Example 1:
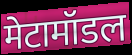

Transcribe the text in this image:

मेटामॉडल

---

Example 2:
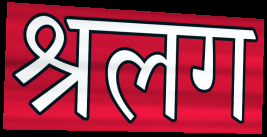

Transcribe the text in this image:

श्रलग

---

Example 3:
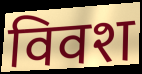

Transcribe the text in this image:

विवश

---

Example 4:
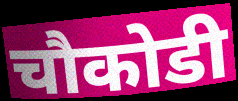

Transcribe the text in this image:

चौकोडी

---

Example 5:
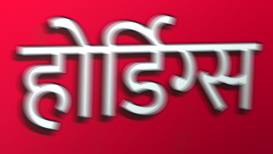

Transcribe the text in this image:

होर्डिग्स